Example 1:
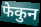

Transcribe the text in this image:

फेकुन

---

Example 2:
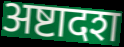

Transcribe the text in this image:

अष्टादश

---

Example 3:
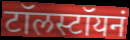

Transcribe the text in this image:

टॉलस्टॉयनं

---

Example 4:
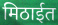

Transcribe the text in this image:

मिठाईत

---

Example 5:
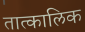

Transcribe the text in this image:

तात्कालिक